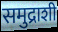
समुद्राशी